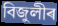
বিজুলীৰ